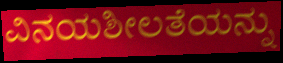
ವಿನಯಶೀಲತೆಯನ್ನು